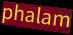
phalam